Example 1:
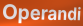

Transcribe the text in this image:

Operandi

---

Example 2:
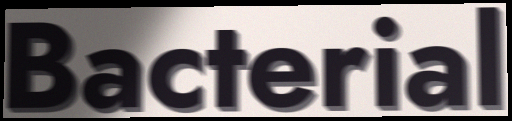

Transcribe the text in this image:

Bacterial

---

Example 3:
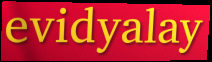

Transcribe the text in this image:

evidyalay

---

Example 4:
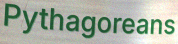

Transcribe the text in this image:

Pythagoreans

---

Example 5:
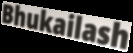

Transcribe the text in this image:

Bhukailash